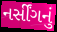
નર્સીંગનું